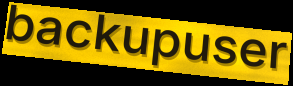
backupuser